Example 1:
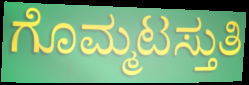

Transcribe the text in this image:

ಗೊಮ್ಮಟಸ್ತುತಿ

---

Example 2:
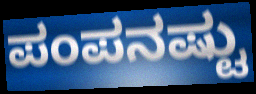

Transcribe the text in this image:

ಪಂಪನಷ್ಟು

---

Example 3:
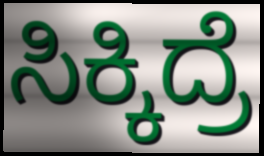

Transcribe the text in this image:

ಸಿಕ್ಕಿದ್ರೆ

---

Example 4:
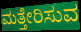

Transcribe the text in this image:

ಮತ್ತೇರಿಸುವ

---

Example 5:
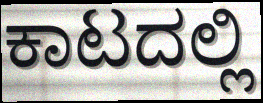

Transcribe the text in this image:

ಕಾಟದಲ್ಲಿ